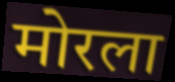
मोरला